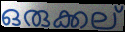
ഒരുക്കല്